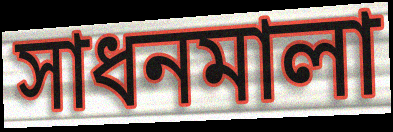
সাধনমালা